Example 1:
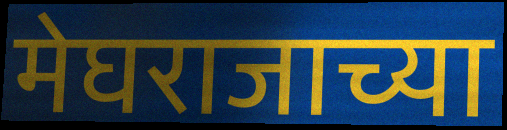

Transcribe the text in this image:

मेघराजाच्या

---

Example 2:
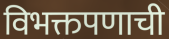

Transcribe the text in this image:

विभक्तपणाची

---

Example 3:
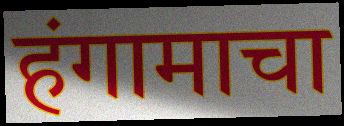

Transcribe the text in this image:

हंगामाचा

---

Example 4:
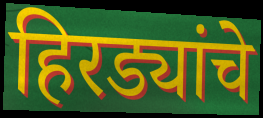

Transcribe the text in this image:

हिरड्यांचे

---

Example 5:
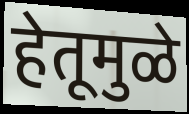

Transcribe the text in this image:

हेतूमुळे